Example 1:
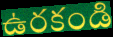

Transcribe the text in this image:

ఉరకండి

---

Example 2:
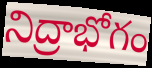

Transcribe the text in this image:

నిద్రాభోగం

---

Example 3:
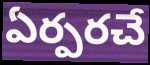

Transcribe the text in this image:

ఏర్పరచే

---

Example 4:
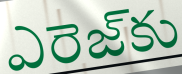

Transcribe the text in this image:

ఎరెజ్‌కు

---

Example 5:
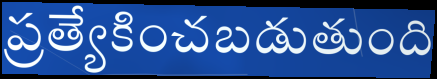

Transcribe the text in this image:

ప్రత్యేకించబడుతుంది